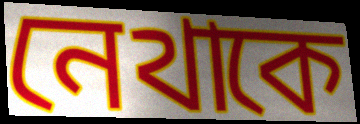
নেথাকে